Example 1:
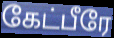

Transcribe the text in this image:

கேட்பீரே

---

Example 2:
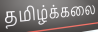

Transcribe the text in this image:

தமிழ்க்கலை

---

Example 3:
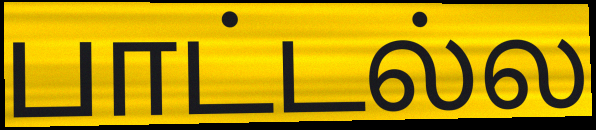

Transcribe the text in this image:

பாட்டல்ல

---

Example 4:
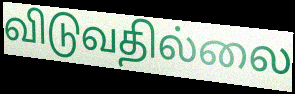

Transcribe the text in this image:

விடுவதில்லை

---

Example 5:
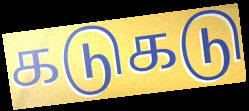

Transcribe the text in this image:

கடுகடு